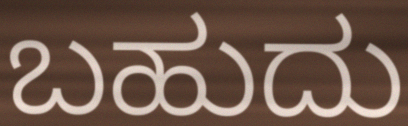
ಬಹುದು